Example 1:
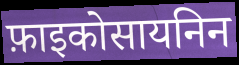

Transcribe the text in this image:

फ़ाइकोसायनिन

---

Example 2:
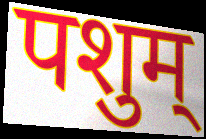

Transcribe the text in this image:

पशुम्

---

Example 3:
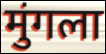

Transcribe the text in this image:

मुंगला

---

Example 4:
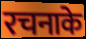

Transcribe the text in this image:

रचनाके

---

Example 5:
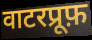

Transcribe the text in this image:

वाटरप्रूफ़